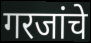
गरजांचे